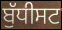
ਬੁੱਧੀਸਟ